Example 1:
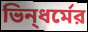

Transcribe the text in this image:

ভিন্‌ধর্মের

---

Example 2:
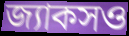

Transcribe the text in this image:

জ্যাকসও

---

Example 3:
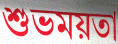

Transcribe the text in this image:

শুভময়তা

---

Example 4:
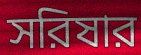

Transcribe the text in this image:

সরিষার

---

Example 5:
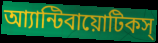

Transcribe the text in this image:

আ্যান্টিবায়োটিকস্